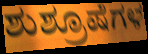
ಶುಶ್ರೂಷೆಗಳ